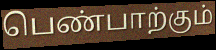
பெண்பாற்கும்